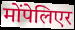
मोंपेलिएर